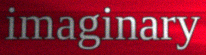
imaginary